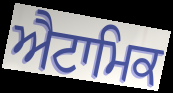
ਐਟਾਮਿਕ